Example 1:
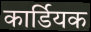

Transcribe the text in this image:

कार्डियक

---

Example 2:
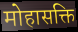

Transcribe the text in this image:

मोहासक्ति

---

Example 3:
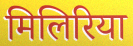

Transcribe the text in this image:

मिलिरिया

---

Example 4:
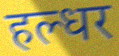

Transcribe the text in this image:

हल्धर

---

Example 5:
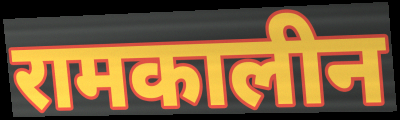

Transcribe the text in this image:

रामकालीन